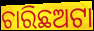
ଚାରିଛଅଟା